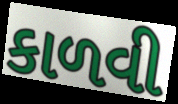
કાળવી